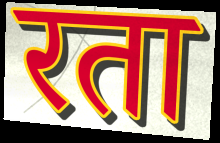
रता